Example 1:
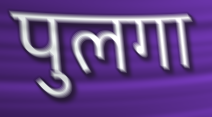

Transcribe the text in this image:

पुलगा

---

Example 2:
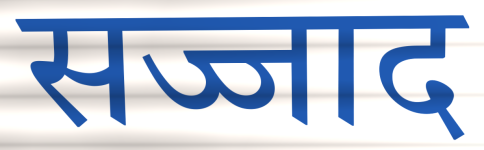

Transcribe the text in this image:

सज्‍जाद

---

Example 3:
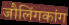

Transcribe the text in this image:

जौलिंगकांग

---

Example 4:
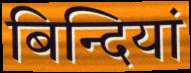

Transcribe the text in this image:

बिन्दियां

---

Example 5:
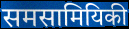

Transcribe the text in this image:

समसामियिकी